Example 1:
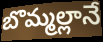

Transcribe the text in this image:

బొమ్మల్లానే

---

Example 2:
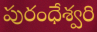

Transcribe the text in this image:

పురంధేశ్వరి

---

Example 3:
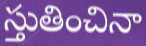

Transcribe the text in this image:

స్తుతించినా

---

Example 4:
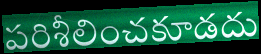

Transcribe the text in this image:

పరిశీలించకూడదు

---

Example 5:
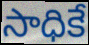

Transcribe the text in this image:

సాధికే